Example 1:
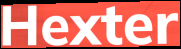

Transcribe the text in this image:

Hexter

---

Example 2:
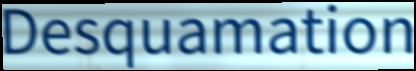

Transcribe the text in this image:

Desquamation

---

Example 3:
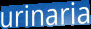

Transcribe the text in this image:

urinaria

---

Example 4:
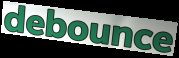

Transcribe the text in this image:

debounce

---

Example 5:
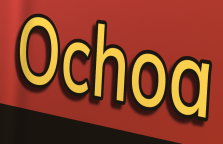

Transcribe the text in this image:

Ochoa